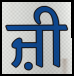
ਜ਼ੀ